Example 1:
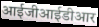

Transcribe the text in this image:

आईजीआईडीआर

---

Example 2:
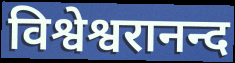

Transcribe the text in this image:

विश्वेश्वरानन्द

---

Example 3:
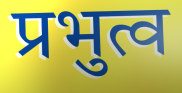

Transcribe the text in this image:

प्रभुत्व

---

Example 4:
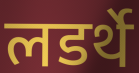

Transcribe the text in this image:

लडर्थे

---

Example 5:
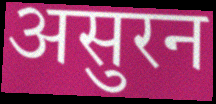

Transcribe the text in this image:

असुरन